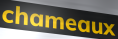
chameaux